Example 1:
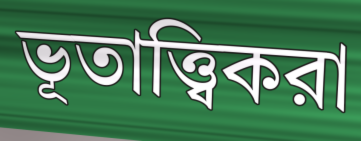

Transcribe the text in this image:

ভূতাত্ত্বিকরা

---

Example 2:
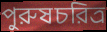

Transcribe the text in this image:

পুরুষচরিত্র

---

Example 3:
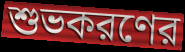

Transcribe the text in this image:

শুভকরণের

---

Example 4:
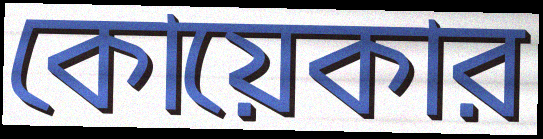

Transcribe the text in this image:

কোয়েকার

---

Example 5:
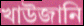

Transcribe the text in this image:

খাউজানি